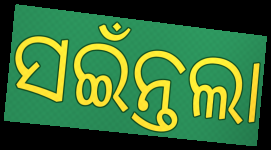
ସଇଁନ୍ତଲା